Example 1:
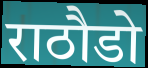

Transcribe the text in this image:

राठौडो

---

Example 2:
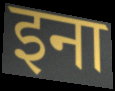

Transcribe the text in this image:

इना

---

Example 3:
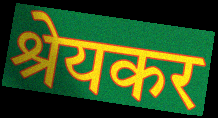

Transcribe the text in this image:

श्रेयकर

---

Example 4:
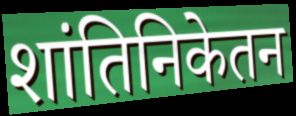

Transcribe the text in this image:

शांतिनिकेतन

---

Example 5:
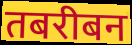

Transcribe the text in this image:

तबरीबन